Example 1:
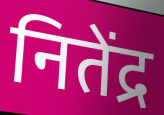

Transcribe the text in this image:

नितेंद्र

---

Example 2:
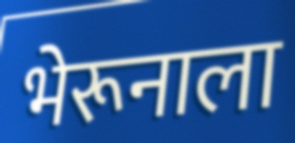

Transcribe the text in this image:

भेरूनाला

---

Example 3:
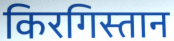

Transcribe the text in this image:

किरगिस्तान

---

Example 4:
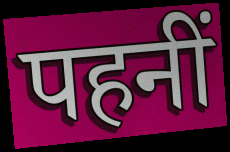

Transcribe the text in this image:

पहनीं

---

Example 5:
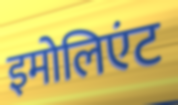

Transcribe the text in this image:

इमोलिएंट